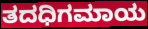
ತದಧಿಗಮಾಯ